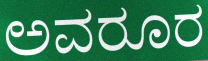
ಅವರೂರ